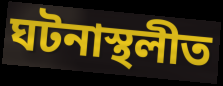
ঘটনাস্থলীত